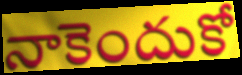
నాకెందుకో